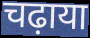
चढ़ाया